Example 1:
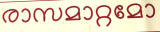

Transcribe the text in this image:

രാസമാറ്റമോ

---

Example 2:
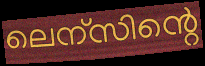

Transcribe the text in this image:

ലെന്സിന്റെ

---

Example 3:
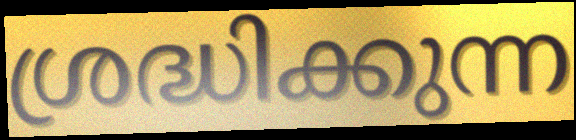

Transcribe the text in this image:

ശ്രദ്ധിക്കുന്ന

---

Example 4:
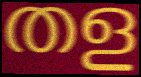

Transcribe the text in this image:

തള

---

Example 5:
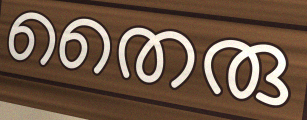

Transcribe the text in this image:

തൈരു